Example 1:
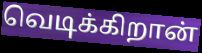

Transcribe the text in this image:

வெடிக்கிறான்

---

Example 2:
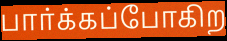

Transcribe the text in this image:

பார்க்கப்போகிற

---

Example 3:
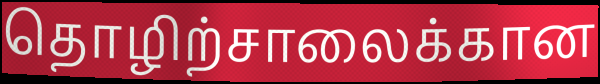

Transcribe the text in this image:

தொழிற்சாலைக்கான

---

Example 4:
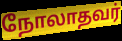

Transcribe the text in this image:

நோலாதவர்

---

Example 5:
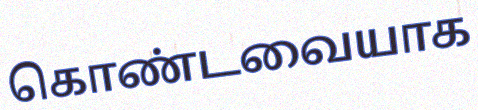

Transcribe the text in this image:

கொண்டவையாக